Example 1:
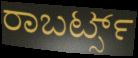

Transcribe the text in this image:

ರಾಬರ್ಟ್ಸ್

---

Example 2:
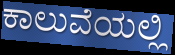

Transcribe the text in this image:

ಕಾಲುವೆಯಲ್ಲಿ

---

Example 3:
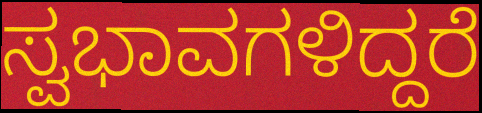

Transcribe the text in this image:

ಸ್ವಭಾವಗಳಿದ್ದರೆ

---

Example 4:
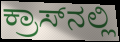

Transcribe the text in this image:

ಕ್ರಾಸ್‌ನಲ್ಲಿ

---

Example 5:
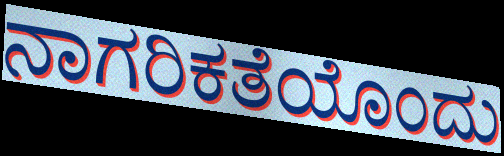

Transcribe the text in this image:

ನಾಗರಿಕತೆಯೊಂದು